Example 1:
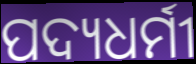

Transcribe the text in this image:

ପଦ୍ୟଧର୍ମୀ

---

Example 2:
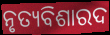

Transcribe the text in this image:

ନୃତ୍ୟବିଶାରଦ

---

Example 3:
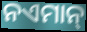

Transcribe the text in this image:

ନଏମାନ୍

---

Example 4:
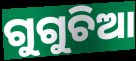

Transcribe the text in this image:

ଗୁଗୁଚିଆ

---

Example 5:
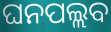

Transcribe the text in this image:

ଘନପଲ୍ଲବ